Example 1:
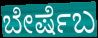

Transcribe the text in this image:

ಬೇರ್ಷೆಬ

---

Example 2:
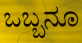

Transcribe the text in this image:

ಒಬ್ಬನೂ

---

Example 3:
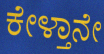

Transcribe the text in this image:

ಕೇಳ್ತಾನೇ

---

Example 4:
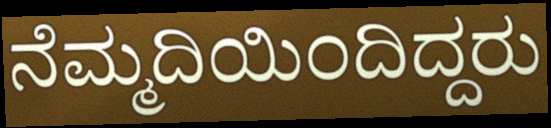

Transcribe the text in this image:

ನೆಮ್ಮದಿಯಿಂದಿದ್ದರು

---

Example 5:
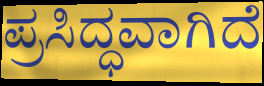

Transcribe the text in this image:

ಪ್ರಸಿದ್ಧವಾಗಿದೆ